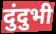
दुंदुभी